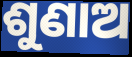
ଶୁଣାଅ